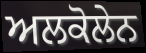
ਅਲਕੋਲੇਨ